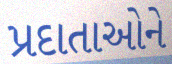
પ્રદાતાઓને